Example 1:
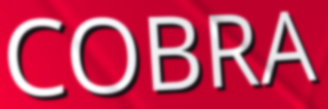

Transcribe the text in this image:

COBRA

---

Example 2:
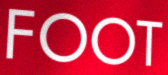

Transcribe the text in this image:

FOOT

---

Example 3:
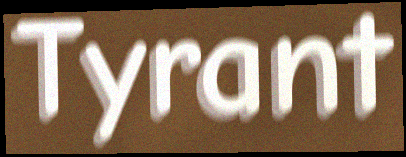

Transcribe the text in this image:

Tyrant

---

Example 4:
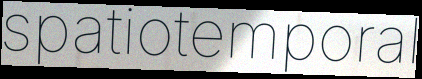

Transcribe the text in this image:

spatiotemporal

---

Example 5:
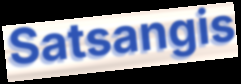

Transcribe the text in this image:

Satsangis